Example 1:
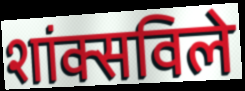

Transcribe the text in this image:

शांक्सविले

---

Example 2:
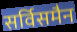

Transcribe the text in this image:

सर्विसमैन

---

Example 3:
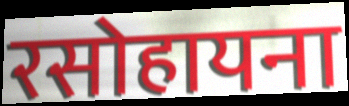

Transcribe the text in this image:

रसोहायना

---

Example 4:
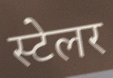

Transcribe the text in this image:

स्टेलर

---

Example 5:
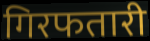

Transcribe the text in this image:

गिरफतारी